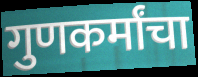
गुणकर्मांचा